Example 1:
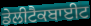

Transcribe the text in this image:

ਡੇਲੀਟੈਕਬਾਈਟ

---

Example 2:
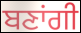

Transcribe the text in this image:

ਬਣਾਂਗੀ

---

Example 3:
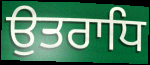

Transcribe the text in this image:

ਉਤਰਾਧਿ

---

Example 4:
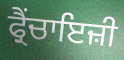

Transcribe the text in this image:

ਫ੍ਰੈਂਚਾਇਜ਼ੀ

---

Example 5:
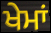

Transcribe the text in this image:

ਖੇਮਾਂ